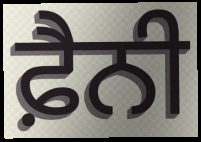
ਫ਼ੈਨੀ